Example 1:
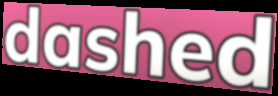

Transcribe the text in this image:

dashed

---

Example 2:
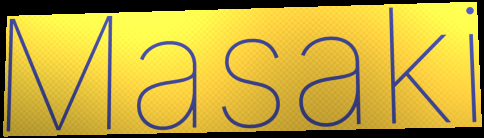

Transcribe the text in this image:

Masaki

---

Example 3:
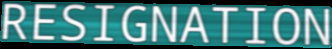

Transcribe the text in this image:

RESIGNATION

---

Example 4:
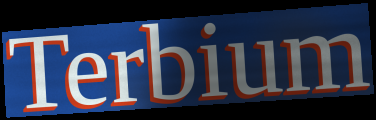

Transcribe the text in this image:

Terbium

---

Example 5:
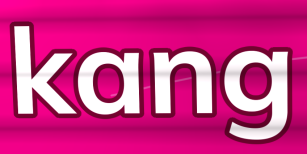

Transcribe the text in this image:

kang